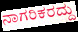
ನಾಗರಿಕರದ್ದು